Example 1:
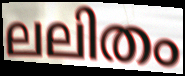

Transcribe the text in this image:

ലലിതം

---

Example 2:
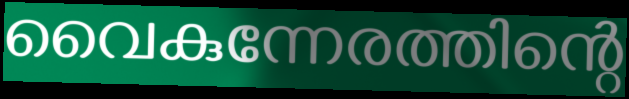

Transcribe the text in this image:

വൈകുന്നേരത്തിന്റെ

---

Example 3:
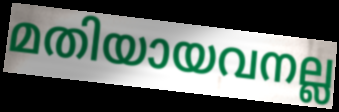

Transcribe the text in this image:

മതിയായവനല്ല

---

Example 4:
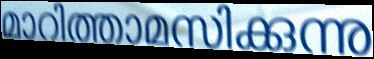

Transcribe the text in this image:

മാറിത്താമസിക്കുന്നു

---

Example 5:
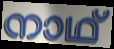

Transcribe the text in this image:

നാഥ്